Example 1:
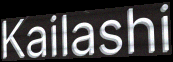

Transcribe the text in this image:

Kailashi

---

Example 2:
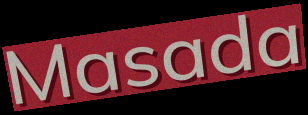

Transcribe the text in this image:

Masada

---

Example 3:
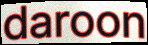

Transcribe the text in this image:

daroon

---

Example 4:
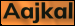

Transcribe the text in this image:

Aajkal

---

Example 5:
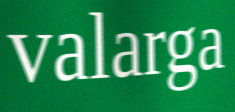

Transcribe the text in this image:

valarga